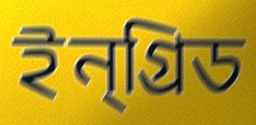
ইন্‌গ্রিড